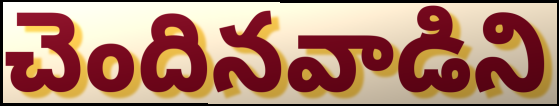
చెందినవాడిని